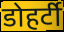
डोहर्टी